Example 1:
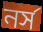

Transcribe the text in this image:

নর্স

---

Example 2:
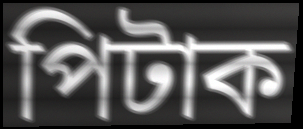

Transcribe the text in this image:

পিটাক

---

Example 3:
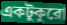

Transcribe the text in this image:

একটুকুরো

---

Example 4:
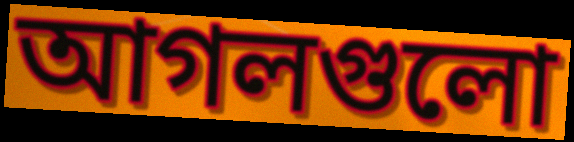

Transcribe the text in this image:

আগলগুলো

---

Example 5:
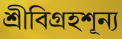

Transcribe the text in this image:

শ্রীবিগ্রহশূন্য